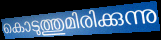
കൊടുത്തുമിരിക്കുന്നു